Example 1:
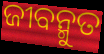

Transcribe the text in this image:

ଜୀବନ୍ମୁତ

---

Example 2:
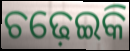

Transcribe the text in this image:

ଚଢ଼େଇକି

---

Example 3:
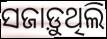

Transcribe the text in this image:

ସଜାଡ଼ୁଥିଲି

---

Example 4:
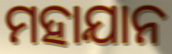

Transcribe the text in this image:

ମହାଯାନ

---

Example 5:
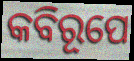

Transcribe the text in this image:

କବିରୂପେ